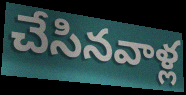
చేసినవాళ్ల